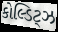
કોલ્ડિટ્ઝ